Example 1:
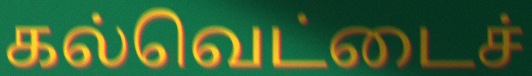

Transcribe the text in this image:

கல்வெட்டைச்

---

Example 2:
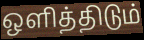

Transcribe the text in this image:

ஒளித்திடும்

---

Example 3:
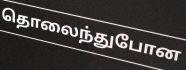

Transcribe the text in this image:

தொலைந்துபோன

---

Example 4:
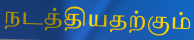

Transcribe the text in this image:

நடத்தியதற்கும்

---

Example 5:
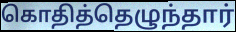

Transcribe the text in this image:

கொதித்தெழுந்தார்